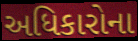
અધિકારોના